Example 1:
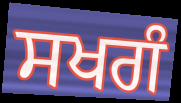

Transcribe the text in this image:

ਸਖਗੰ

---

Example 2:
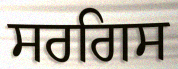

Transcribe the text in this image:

ਸਰਗਿਸ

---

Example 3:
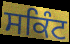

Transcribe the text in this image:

ਸਕਿੰਟ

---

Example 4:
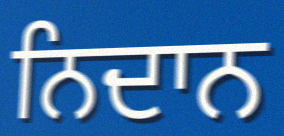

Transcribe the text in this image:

ਨਿਦਾਨ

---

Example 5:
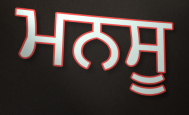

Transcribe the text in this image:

ਮਨਸੂ